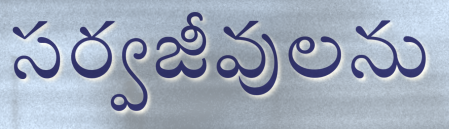
సర్వజీవులను